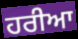
ਹਰੀਆ